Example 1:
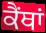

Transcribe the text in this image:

ਕੈਂਥਾਂ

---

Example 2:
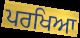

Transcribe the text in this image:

ਪਰਖਿਆ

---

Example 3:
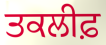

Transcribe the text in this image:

ਤਕਲੀਫ਼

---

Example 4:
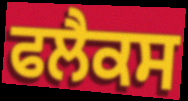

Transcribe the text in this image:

ਫਲੈਕਸ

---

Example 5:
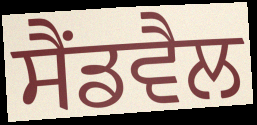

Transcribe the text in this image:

ਸੈਂਡਵੈਲ